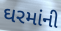
ઘરમાંની